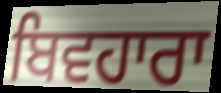
ਬਿਵਹਾਰਾ